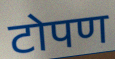
टोपण